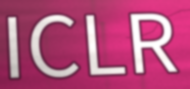
ICLR